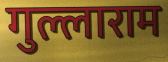
गुल्लाराम